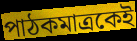
পাঠকমাত্রকেই